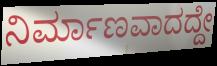
ನಿರ್ಮಾಣವಾದದ್ದೇ